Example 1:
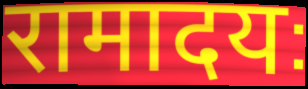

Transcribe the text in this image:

रामादयः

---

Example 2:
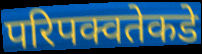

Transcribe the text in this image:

परिपक्वतेकडे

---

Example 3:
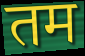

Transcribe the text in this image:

तम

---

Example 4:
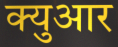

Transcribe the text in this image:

क्युआर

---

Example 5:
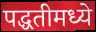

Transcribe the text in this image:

पद्धतीमध्ये